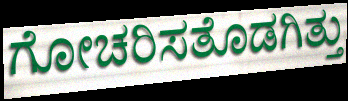
ಗೋಚರಿಸತೊಡಗಿತ್ತು